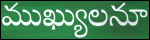
ముఖ్యులనూ